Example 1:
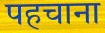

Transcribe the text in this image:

पहचाना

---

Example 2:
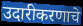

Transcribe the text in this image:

उदारीकरणाचे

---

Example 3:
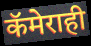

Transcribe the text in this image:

कॅमेराही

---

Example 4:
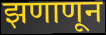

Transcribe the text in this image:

झणाणून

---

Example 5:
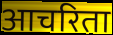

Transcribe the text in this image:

आचरिता